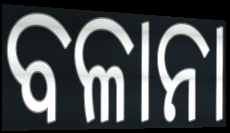
ବଳାନା